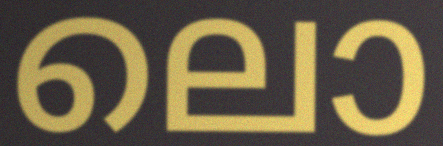
ലൊ